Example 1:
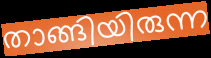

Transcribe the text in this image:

താങ്ങിയിരുന്ന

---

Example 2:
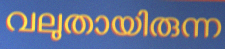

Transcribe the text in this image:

വലുതായിരുന്ന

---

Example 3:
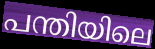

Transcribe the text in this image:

പന്തിയിലെ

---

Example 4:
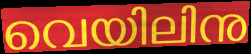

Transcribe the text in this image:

വെയിലിനു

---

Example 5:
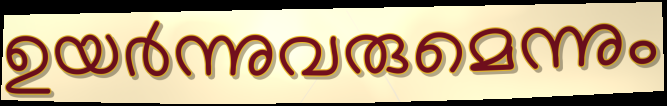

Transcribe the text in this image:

ഉയർന്നുവരുമെന്നും